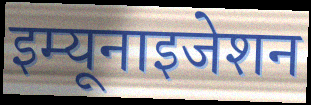
इम्यूनाइजेशन